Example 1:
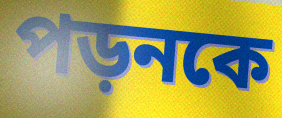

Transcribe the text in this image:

পড়নকে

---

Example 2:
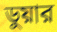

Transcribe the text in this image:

ডুয়ার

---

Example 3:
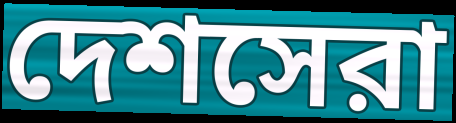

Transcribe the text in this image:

দেশসেরা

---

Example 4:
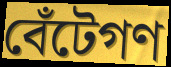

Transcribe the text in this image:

বেঁটেগণ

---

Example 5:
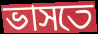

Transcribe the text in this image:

ভাসতে